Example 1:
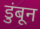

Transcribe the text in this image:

डुंबून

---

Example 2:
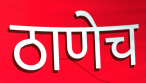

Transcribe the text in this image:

ठाणेच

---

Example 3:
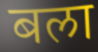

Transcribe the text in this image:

बला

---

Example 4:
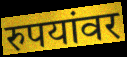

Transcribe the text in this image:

रुपयांवर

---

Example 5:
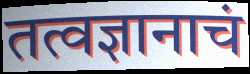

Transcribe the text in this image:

तत्वज्ञानाचं